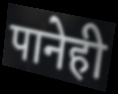
पानेही